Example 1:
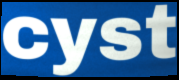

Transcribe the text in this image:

cyst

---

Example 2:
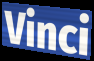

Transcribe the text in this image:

Vinci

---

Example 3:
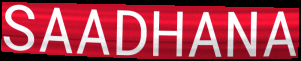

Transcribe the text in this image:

SAADHANA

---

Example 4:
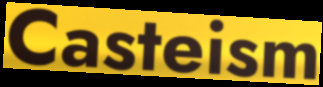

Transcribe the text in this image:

Casteism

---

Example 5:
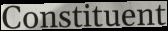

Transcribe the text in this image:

Constituent